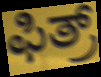
ಫಿತ್ರ್